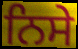
ਨਿਸੇ